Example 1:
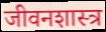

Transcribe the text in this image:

जीवनशास्त्र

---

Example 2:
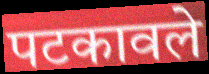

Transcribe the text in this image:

पटकावले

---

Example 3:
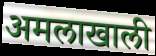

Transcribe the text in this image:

अमलाखाली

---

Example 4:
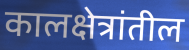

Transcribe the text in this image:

कालक्षेत्रांतील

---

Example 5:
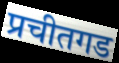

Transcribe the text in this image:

प्रचीतगड